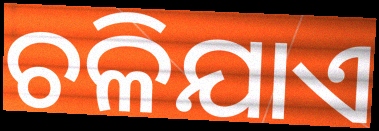
ଚଳିଯାଏ